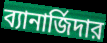
ব্যানার্জিদার